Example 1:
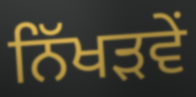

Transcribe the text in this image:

ਨਿੱਖੜਵੇਂ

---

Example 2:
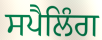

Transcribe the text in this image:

ਸਪੈਲਿੰਗ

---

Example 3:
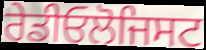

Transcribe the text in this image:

ਰੇਡੀਓਲੋਜਿਸਟ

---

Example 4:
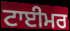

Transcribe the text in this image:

ਟਾਈਮਰ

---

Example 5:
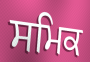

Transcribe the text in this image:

ਸਮਿਕ